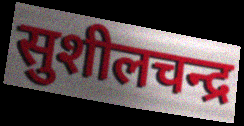
सुशीलचन्द्र